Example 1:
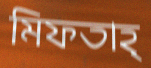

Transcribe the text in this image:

মিফতাহ্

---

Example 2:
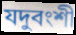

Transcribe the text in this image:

যদুবংশী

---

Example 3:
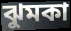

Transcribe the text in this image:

ঝুমকা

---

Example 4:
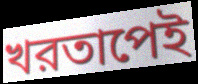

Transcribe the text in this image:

খরতাপেই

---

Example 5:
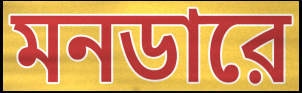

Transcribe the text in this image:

মনডারে